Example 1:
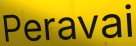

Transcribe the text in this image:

Peravai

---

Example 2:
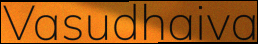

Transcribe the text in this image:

Vasudhaiva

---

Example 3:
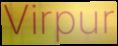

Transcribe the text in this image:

Virpur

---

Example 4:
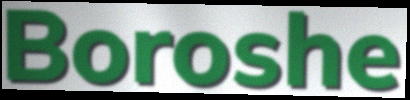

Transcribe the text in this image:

Boroshe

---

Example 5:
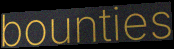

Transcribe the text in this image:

bounties